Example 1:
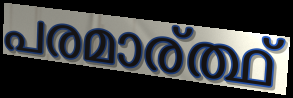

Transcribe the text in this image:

പരമാര്ത്ഥ്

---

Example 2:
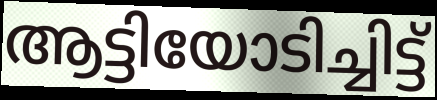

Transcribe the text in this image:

ആട്ടിയോടിച്ചിട്ട്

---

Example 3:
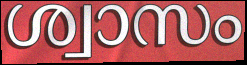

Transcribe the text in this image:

ശ്വാസം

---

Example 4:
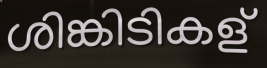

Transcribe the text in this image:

ശിങ്കിടികള്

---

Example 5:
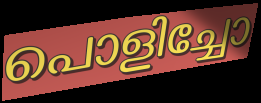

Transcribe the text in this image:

പൊളിച്ചോ